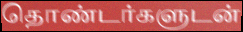
தொண்டர்களுடன்